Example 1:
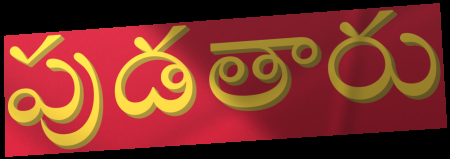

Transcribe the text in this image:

పుడతారు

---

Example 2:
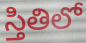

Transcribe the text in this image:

స్తితిలో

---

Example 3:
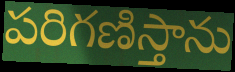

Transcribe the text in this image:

పరిగణిస్తాను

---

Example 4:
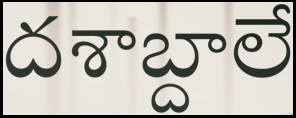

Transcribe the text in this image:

దశాబ్దాలే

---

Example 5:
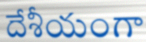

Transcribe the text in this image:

దేశీయంగా